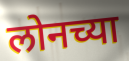
लोनच्या